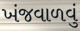
ખંજવાળવું